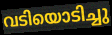
വടിയൊടിച്ചു